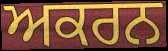
ਅਕਰਨ